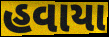
હવાયા